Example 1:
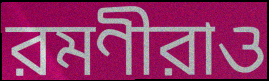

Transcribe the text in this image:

রমণীরাও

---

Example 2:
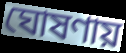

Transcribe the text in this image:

ঘোষণায়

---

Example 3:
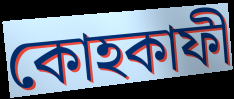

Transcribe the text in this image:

কোহকাফী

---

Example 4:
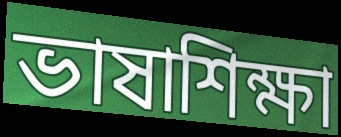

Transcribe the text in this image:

ভাষাশিক্ষা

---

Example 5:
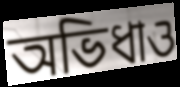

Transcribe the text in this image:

অভিধাও